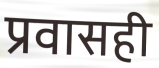
प्रवासही